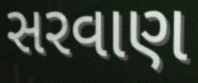
સરવાણ